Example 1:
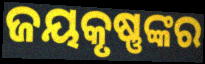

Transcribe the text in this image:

ଜୟକୃଷ୍ଣଙ୍କର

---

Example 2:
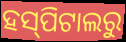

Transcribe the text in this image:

ହସ୍‍ପିଟାଲରୁ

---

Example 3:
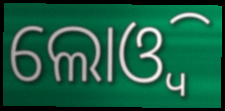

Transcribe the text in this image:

ଲୋଓ୍ବି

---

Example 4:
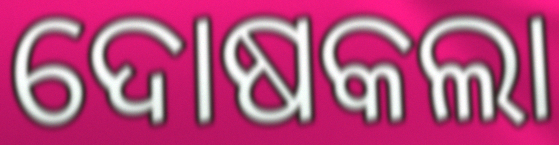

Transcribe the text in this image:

ଦୋଷକଲା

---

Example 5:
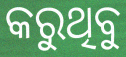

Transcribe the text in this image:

କରୁଥିବୁ